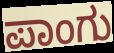
ಪಾಂಗು